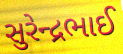
સુરેન્દ્રભાઈ